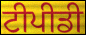
ਟੀਪੀਡੀ